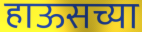
हाऊसच्या